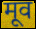
मूव